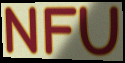
NFU